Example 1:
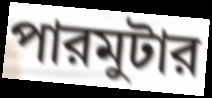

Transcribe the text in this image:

পারমুটার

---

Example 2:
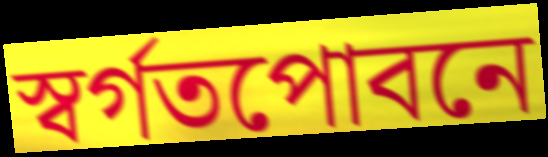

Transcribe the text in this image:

স্বর্গতপোবনে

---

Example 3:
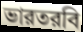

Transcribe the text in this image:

ভারতরবি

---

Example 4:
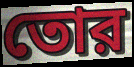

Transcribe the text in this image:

তোর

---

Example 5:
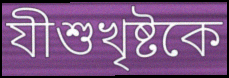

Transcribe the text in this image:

যীশুখৃষ্টকে